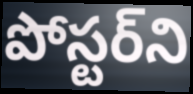
పోస్టర్‌ని